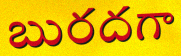
బురదగా